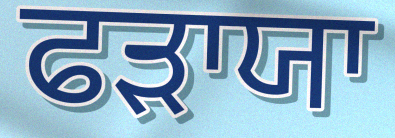
ਫੜਾਯਾ